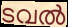
ടവൽ